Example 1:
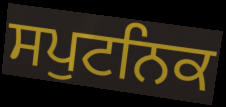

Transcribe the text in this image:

ਸਪੁਟਨਿਕ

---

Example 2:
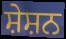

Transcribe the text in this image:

ਸ਼ੇਸ਼ਨ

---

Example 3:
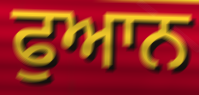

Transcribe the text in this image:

ਫੁਆਨ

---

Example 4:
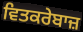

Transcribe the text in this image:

ਵਿਤਕਰੇਬਾਜ਼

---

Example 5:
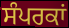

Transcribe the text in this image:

ਸੰਪਰਕਾਂ